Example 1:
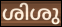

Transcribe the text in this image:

ശിശു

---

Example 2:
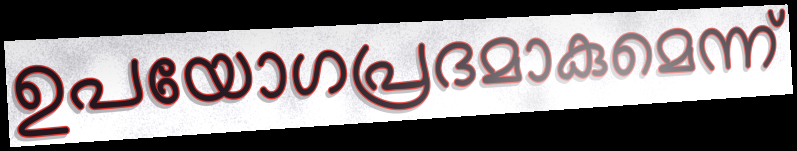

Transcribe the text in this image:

ഉപയോഗപ്രദമാകുമെന്ന്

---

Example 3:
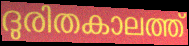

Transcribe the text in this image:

ദുരിതകാലത്ത്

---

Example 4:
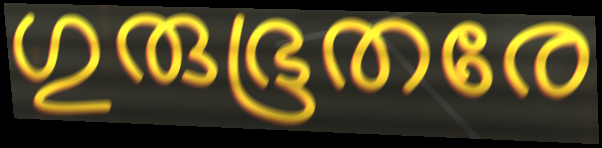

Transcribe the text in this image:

ഗുരുഭൂതരേ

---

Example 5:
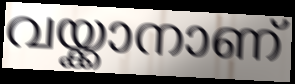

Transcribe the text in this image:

വയ്ക്കാനാണ്